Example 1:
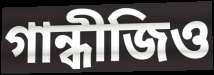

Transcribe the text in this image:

গান্ধীজিও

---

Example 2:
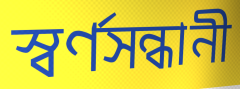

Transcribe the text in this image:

স্বর্ণসন্ধানী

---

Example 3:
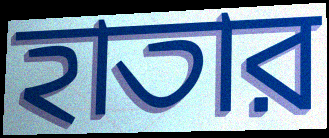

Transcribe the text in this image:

হাতার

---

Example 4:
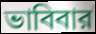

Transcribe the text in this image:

ভাবিবার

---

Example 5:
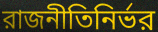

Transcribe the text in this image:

রাজনীতিনির্ভর